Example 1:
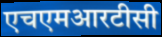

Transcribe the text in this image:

एचएमआरटीसी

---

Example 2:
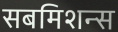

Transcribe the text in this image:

सबमिशन्स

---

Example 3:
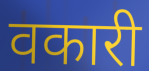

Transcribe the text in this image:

वकारी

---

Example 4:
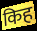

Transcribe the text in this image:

किह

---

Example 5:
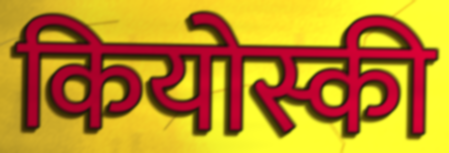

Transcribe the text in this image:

कियोस्की